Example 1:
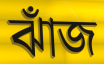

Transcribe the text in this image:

ঝাঁজ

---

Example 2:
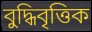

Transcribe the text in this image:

বুদ্ধিবৃত্তিক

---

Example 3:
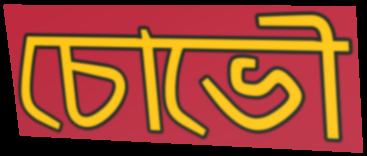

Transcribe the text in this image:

চোভৌ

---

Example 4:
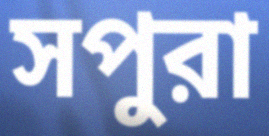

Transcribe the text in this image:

সপুরা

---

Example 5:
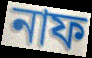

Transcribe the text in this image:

নাফ